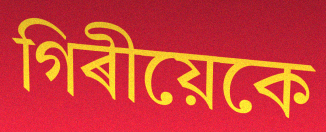
গিৰীয়েকে